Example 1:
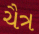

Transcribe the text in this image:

ચૈત્ર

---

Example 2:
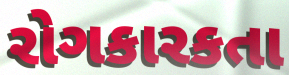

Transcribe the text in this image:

રોગકારકતા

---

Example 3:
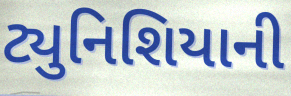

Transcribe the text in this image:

ટ્યુનિશિયાની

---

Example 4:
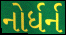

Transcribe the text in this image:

નોર્ધર્ન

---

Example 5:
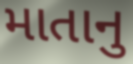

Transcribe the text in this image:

માતાનુ